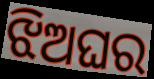
ଝିଅଘର